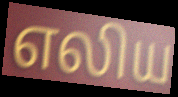
எலிய